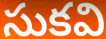
సుకవి